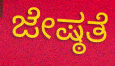
ಜೇಷ್ಠತೆ